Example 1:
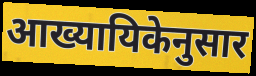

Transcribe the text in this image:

आख्यायिकेनुसार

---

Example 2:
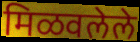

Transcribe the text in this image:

मिळवलेले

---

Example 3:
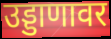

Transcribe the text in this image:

उड्डाणावर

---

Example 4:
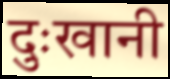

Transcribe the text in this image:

दुःखानी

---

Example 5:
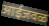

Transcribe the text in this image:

आईजवळ